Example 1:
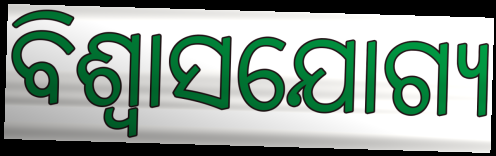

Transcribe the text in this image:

ବିଶ୍ବାସଯୋଗ୍ୟ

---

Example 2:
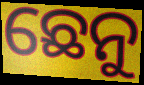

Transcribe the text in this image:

ଛେନୁ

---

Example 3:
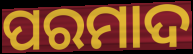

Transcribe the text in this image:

ପରମାଦ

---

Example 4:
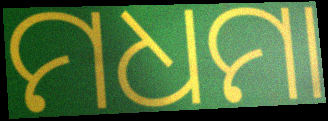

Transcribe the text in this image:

ମଧମା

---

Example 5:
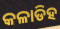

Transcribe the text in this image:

କଳାଡିହ